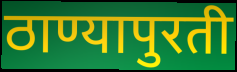
ठाण्यापुरती